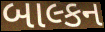
બાલ્કન